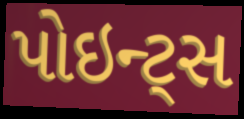
પોઇન્ટ્સ